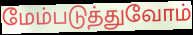
மேம்படுத்துவோம்